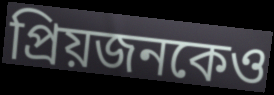
প্রিয়জনকেও